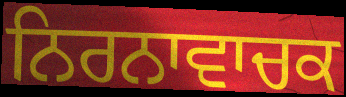
ਨਿਰਨਾਵਾਚਕ